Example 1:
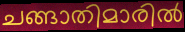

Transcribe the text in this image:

ചങ്ങാതിമാരിൽ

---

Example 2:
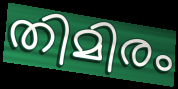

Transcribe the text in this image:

തിമിരം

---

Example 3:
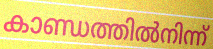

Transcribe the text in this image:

കാണ്ഡത്തിൽനിന്ന്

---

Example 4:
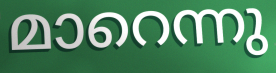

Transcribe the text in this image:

മാറെന്നു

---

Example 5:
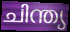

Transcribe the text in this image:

ചിന്ത്യ